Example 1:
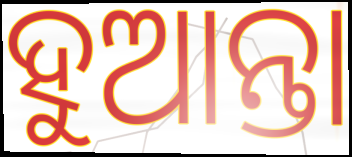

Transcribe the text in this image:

ହୁଆନ୍ତା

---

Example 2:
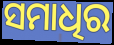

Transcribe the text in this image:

ସମାଧିର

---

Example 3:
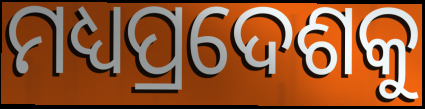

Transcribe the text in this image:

ମଧ୍ୟପ୍ରଦେଶକୁ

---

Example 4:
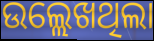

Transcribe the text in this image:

ଉଲ୍ଲେଖଥିଲା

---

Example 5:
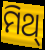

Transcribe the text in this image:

ମିଥ୍